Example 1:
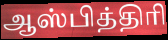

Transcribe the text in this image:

ஆஸ்பித்திரி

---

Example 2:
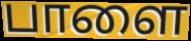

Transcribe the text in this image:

பாளை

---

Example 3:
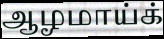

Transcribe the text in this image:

ஆழமாய்க்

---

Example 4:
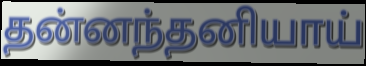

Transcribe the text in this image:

தன்னந்தனியாய்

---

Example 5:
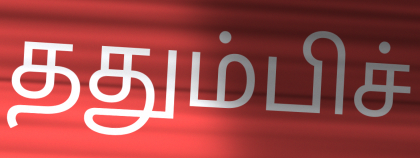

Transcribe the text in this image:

ததும்பிச்